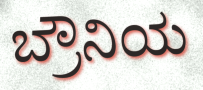
ಬ್ರೌನಿಯ